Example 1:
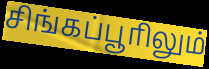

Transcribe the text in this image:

சிங்கப்பூரிலும்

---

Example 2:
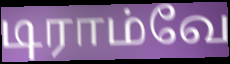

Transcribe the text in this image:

டிராம்வே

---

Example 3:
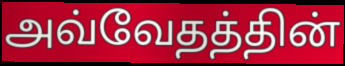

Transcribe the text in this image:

அவ்வேதத்தின்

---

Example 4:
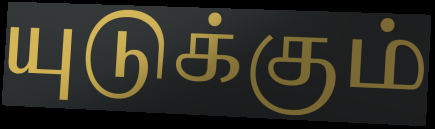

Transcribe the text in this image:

யுடுக்கும்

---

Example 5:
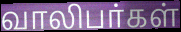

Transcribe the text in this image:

வாலிபர்கள்